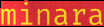
minara